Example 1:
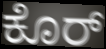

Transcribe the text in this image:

ಕೊರ್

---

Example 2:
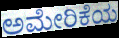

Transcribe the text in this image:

ಅಮೇರಿಕೆಯ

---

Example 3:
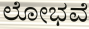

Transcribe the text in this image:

ಲೋಭವೆ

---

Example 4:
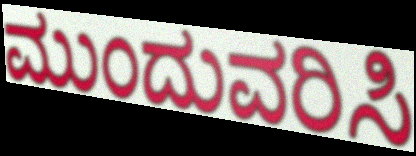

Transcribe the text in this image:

ಮುಂದುವರಿಸಿ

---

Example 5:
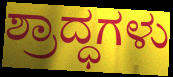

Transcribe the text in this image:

ಶ್ರಾದ್ಧಗಳು